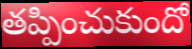
తప్పించుకుందో